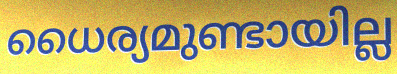
ധൈര്യമുണ്ടായില്ല